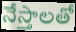
నేస్తాలతో